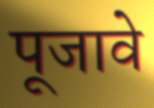
पूजावे